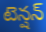
టెన్షన్